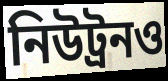
নিউট্রনও